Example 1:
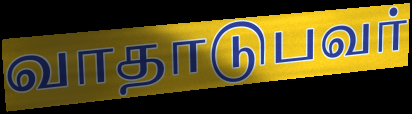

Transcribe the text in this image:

வாதாடுபவர்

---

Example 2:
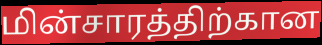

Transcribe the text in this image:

மின்சாரத்திற்கான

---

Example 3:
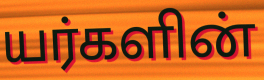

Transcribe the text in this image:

யர்களின்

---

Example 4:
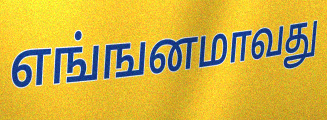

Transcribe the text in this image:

எங்ஙனமாவது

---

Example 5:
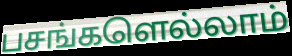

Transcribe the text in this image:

பசங்களெல்லாம்